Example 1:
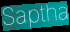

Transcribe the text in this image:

Saptha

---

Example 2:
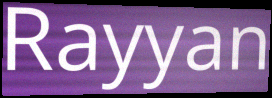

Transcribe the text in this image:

Rayyan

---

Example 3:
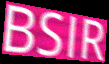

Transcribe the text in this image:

BSIR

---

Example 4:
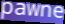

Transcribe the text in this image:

pawne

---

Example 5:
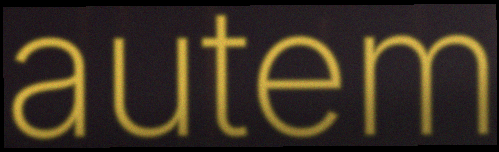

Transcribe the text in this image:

autem